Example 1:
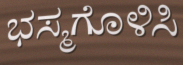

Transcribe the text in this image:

ಭಸ್ಮಗೊಳಿಸಿ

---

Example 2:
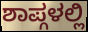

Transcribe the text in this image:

ಶಾಪ್ಗಳಲ್ಲಿ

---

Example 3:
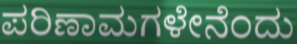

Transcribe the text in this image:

ಪರಿಣಾಮಗಳೇನೆಂದು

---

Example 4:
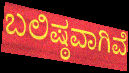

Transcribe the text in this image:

ಬಲಿಷ್ಠವಾಗಿವೆ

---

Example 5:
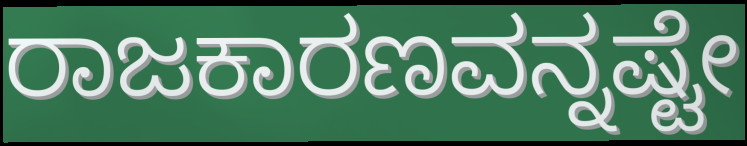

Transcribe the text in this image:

ರಾಜಕಾರಣವನ್ನಷ್ಟೇ